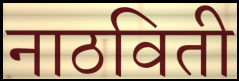
नाठविती